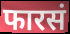
फारसं